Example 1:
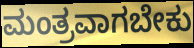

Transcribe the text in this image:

ಮಂತ್ರವಾಗಬೇಕು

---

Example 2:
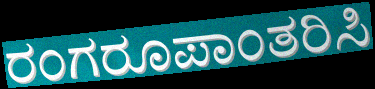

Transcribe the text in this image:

ರಂಗರೂಪಾಂತರಿಸಿ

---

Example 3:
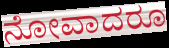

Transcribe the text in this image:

ನೋವಾದರೂ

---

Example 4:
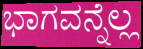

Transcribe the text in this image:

ಭಾಗವನ್ನೆಲ್ಲ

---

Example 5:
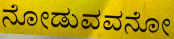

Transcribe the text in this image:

ನೋಡುವವನೋ